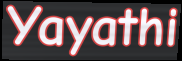
Yayathi